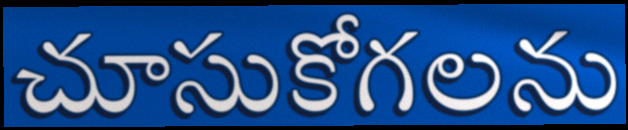
చూసుకోగలను